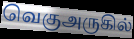
வெகுஅருகில்